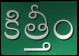
కిత్తీం